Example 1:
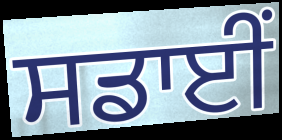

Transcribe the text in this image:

ਸਡਾਈਂ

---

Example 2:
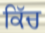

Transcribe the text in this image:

ਕਿੱਚ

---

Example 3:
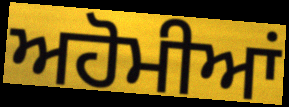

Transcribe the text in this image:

ਅਹੋਮੀਆਂ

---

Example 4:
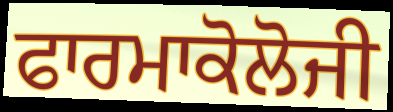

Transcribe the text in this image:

ਫਾਰਮਾਕੋਲੋਜੀ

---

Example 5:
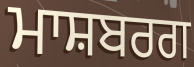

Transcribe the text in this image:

ਮਾਸ਼ਬਰਗ